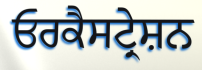
ਓਰਕੈਸਟ੍ਰੇਸ਼ਨ